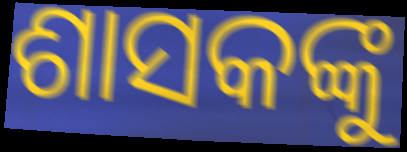
ଶାସକଙ୍କୁ